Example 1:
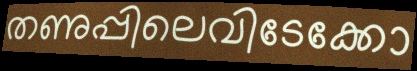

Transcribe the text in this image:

തണുപ്പിലെവിടേക്കോ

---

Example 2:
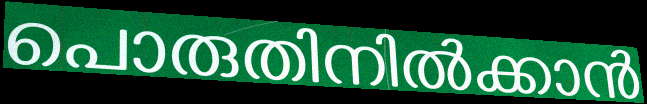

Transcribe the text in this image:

പൊരുതിനിൽക്കാൻ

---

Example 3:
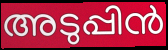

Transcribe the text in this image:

അടുപ്പിൻ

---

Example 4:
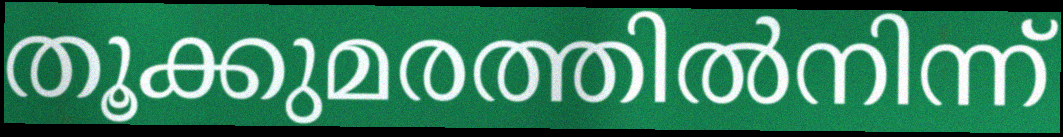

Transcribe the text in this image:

തൂക്കുമരത്തിൽനിന്ന്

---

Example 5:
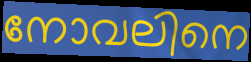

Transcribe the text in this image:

നോവലിനെ